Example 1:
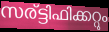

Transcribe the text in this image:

സര്ട്ടിഫിക്കറ്റും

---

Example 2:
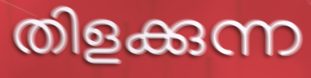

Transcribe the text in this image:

തിളക്കുന്ന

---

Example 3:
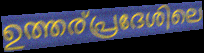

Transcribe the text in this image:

ഉത്തര്പ്രദേശിലെ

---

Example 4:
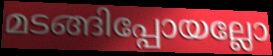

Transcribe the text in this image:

മടങ്ങിപ്പോയല്ലോ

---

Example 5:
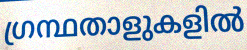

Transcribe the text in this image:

ഗ്രന്ഥതാളുകളിൽ